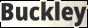
Buckley